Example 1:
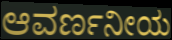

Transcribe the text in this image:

ಆವರ್ಣನೀಯ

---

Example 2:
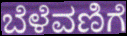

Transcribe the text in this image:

ಬೆಳೆವಣಿಗೆ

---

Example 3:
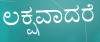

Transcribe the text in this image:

ಲಕ್ಷವಾದರೆ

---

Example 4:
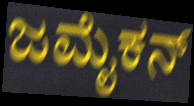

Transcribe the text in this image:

ಜಮೈಕನ್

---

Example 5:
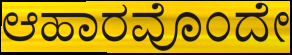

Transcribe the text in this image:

ಆಹಾರವೊಂದೇ